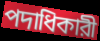
পদাধিকারী